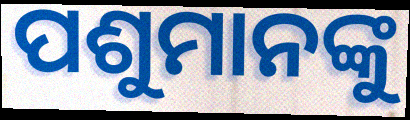
ପଶୁମାନଙ୍କୁ